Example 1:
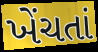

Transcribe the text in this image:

ખેંચતાં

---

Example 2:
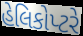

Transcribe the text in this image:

હેલિકોપ્ટરે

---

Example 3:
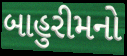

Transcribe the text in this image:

બાહુરીમનો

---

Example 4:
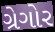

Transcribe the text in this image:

ગ્રેગોર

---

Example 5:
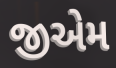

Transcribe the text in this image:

જીએમ